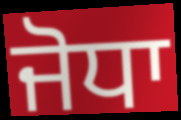
ਜੋਧਾ